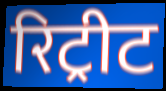
रिट्रीट